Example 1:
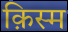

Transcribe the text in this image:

क़िस्‍म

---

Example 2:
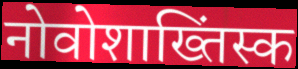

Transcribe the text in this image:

नोवोशाख्तिंस्क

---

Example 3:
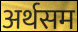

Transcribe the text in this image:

अर्थसम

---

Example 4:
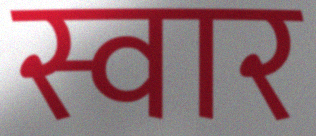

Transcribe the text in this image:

स्‍वार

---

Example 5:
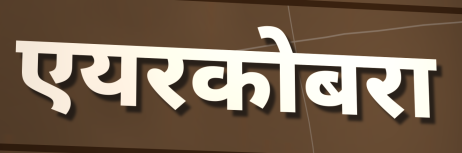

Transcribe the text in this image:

एयरकोबरा